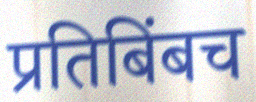
प्रतिबिंबच